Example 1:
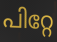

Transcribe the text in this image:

പിറ്റേ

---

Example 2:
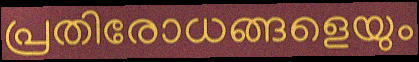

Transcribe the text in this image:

പ്രതിരോധങ്ങളെയും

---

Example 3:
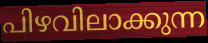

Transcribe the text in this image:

പിഴവിലാക്കുന്ന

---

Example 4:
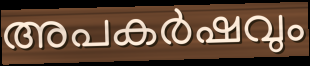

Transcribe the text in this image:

അപകർഷവും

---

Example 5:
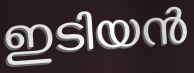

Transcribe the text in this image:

ഇടിയൻ